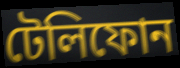
টেলিফোন